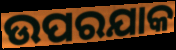
ଉପରଯାକ